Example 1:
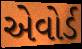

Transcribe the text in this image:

એવોર્ડ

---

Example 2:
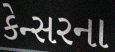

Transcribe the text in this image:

કેન્સરના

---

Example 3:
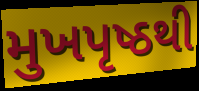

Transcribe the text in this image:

મુખપૃષ્ઠથી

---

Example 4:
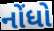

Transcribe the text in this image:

નોંધો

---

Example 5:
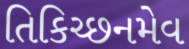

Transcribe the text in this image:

તિકિચ્છનમેવ